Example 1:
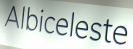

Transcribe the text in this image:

Albiceleste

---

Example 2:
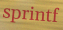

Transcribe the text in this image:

sprintf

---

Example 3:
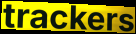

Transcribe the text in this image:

trackers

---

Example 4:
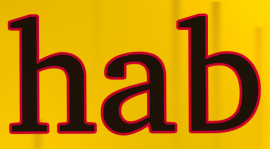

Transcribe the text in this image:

hab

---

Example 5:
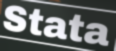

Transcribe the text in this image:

Stata